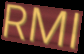
RMI